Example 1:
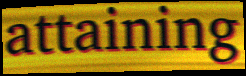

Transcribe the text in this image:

attaining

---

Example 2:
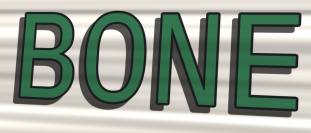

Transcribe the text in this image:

BONE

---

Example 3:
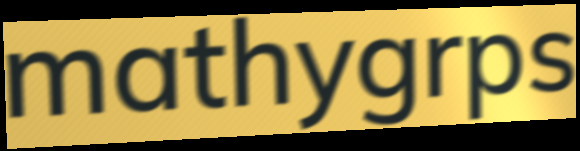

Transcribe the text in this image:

mathygrps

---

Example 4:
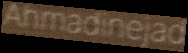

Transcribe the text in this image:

Ahmadinejad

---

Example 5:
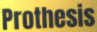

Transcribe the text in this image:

Prothesis